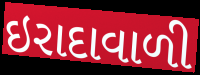
ઇરાદાવાળી